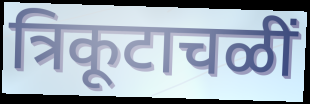
त्रिकूटाचळीं